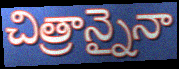
చిత్రాన్నైనా